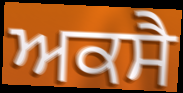
ਅਕਸੈ